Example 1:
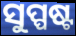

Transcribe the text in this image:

ସୁପ୍ପଷ୍ଟ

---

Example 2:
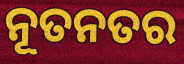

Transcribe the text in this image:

ନୂତନତର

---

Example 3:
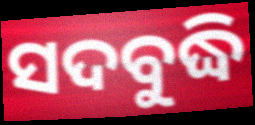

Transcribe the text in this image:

ସଦବୁଦ୍ଧି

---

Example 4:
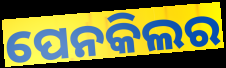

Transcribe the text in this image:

ପେନକିଲର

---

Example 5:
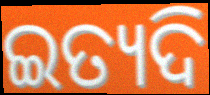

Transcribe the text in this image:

ଇତ୍ୟଦି